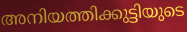
അനിയത്തിക്കുട്ടിയുടെ